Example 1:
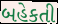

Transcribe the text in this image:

બહેકતી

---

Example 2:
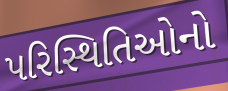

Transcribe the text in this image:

પરિસ્થિતિઓનો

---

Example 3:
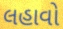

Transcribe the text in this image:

લહાવો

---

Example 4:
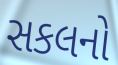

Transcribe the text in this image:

સકલનો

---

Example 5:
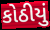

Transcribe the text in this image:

કોઠીયું